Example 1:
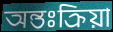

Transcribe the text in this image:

অন্তঃক্রিয়া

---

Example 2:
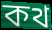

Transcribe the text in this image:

কথ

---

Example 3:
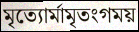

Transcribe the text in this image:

মৃত্যোর্মামৃতংগময়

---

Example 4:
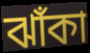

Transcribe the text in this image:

ঝাঁকা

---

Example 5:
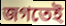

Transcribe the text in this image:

জগতেই